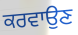
ਕਰਵਾਉਣ